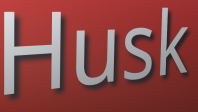
Husk